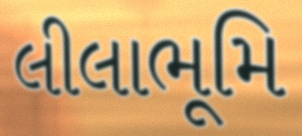
લીલાભૂમિ